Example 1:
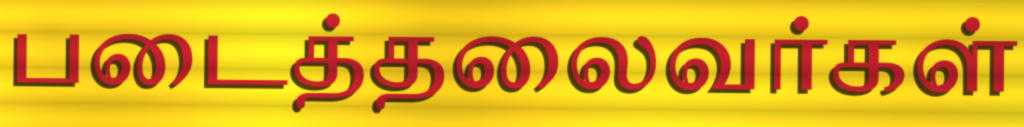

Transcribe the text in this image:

படைத்தலைவர்கள்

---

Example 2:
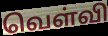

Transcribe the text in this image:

வெள்வி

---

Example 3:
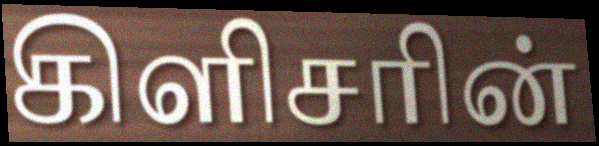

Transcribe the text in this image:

கிளிசரின்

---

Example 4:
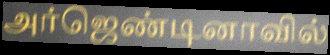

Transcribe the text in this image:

அர்ஜெண்டினாவில்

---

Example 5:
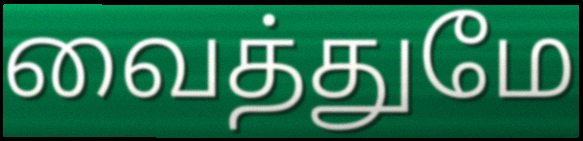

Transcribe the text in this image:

வைத்துமே